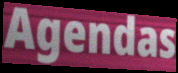
Agendas